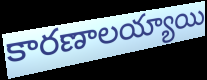
కారణాలయ్యాయి